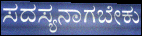
ಸದಸ್ಯನಾಗಬೇಕು